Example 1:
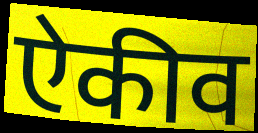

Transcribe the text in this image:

ऐकीव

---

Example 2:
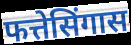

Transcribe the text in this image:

फत्तेसिंगास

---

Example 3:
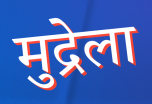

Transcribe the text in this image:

मुद्रेला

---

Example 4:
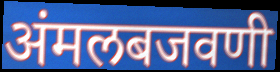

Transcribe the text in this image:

अंमलबजवणी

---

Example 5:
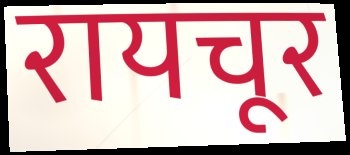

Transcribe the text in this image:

रायचूर